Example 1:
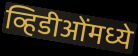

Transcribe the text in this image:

व्हिडीओंमध्ये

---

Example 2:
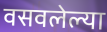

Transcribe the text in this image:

वसवलेल्या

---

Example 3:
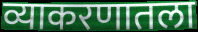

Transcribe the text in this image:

व्याकरणातला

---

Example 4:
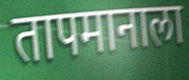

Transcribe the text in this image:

तापमानाला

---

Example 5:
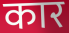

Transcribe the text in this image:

कार